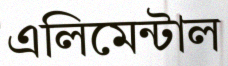
এলিমেন্টাল